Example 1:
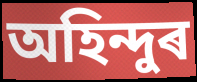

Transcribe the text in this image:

অহিন্দুৰ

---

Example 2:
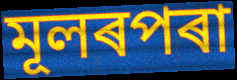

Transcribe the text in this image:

মূলৰপৰা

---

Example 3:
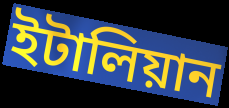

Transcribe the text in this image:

ইটালিয়ান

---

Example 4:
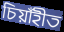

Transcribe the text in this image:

চিয়াঁহীত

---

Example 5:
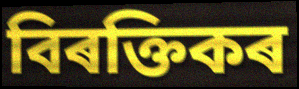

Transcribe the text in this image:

বিৰক্তিকৰ